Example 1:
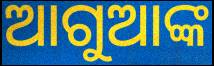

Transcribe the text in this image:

ଆଗୁଆଙ୍କ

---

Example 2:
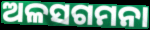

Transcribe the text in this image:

ଅଳସଗମନା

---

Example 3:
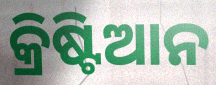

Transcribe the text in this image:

କ୍ରିଷ୍ଟିଆନ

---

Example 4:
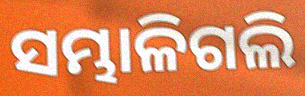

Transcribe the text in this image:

ସମ୍ଭାଳିଗଲି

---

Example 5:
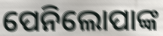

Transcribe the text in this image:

ପେନିଲୋପାଙ୍କ